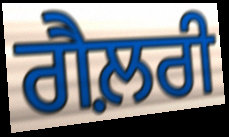
ਗੈਲ਼ਰੀ